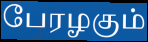
பேரழகும்